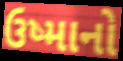
ઉષ્માનો